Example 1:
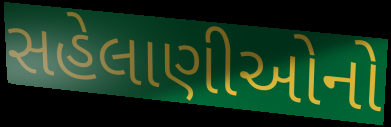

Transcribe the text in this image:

સહેલાણીઓનો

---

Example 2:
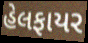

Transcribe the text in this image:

હેલફાયર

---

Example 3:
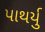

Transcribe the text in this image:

પાથર્યુ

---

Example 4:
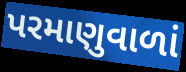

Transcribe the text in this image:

પરમાણુવાળાં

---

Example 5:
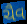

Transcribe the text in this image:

ચૈવ